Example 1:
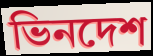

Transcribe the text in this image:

ভিনদেশ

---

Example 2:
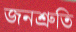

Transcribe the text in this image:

জনশ্রুতি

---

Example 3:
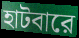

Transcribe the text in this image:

হাটবারে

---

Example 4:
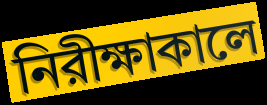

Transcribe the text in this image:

নিরীক্ষাকালে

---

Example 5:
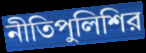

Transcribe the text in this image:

নীতিপুলিশির